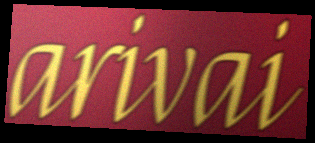
arivai